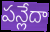
పన్లేదా